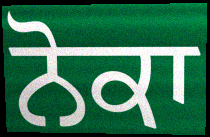
ਨੋਕਾ